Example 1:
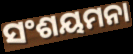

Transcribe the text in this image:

ସଂଶୟମନା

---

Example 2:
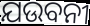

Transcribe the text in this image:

ଯଉବନୀ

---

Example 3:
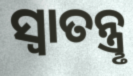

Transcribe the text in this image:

ସ୍ବାତନ୍ତ୍ରୢ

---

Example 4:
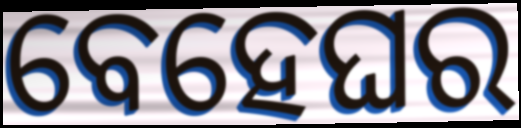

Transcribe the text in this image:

ବେହେଘର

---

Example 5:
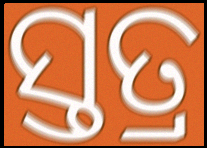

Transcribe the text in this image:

ସ୍ତତ୍ର